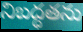
నిబద్ధతను